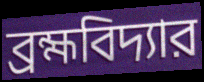
ব্রহ্মবিদ্যার